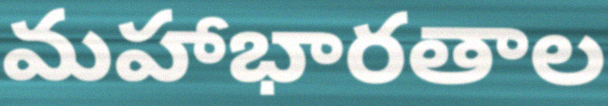
మహాభారతాల